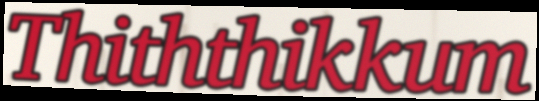
Thiththikkum